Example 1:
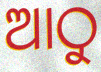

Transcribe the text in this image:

ଆଠୁ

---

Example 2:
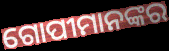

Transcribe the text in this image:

ଗୋପୀମାନଙ୍କର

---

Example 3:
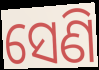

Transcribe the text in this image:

ସେଣି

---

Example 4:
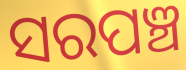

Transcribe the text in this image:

ସରପଞ୍ଚ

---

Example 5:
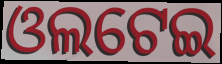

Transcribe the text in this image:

ଓଲଟେଇ